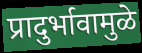
प्रादुर्भावामुळे